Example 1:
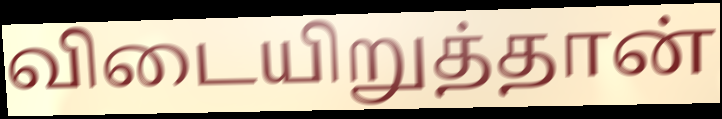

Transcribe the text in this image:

விடையிறுத்தான்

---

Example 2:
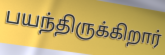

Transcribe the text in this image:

பயந்திருக்கிறார்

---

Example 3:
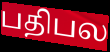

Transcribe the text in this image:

பதிபல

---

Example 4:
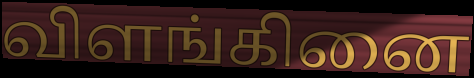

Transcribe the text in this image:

விளங்கினை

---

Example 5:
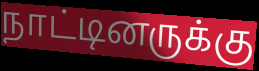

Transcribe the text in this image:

நாட்டினருக்கு